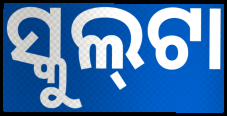
ସ୍କୁଲ୍‍ଟା